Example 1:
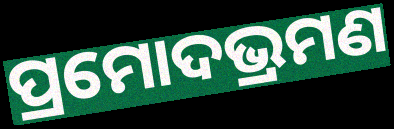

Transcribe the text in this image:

ପ୍ରମୋଦଭ୍ରମଣ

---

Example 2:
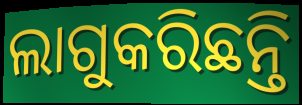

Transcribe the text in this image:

ଲାଗୁକରିଛନ୍ତି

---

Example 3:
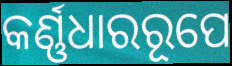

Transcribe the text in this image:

କର୍ଣ୍ଣଧାରରୂପେ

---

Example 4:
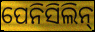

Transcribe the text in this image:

ପେନିସିଲିନ୍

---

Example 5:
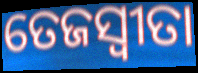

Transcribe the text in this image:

ତେଜସ୍ଵୀତା